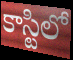
కాస్టిలో